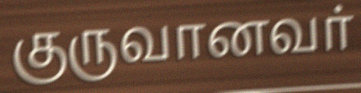
குருவானவர்